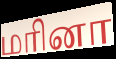
மரினா